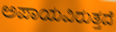
ಅಪಾಯವಿರುತ್ತದೆ